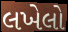
લખેલો